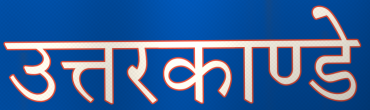
उत्तरकाण्डे